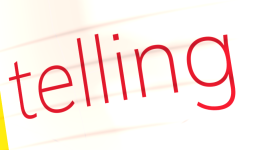
telling